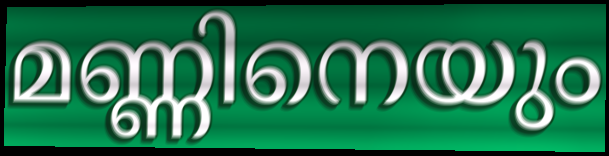
മണ്ണിനെയും